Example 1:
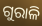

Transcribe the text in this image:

ଗୁରାଳି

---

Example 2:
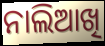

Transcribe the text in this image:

ନାଲିଆଖି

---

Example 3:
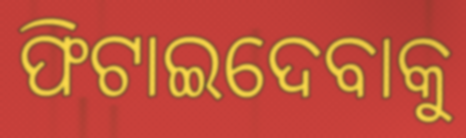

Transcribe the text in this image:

ଫିଟାଇଦେବାକୁ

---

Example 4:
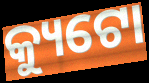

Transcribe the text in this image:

କ୍ୟୁଟୋ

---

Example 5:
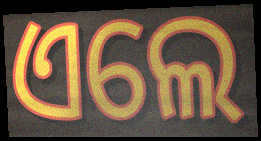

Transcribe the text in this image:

ଏଲେ